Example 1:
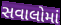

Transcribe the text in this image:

સવાલોમાં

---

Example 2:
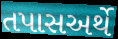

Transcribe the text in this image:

તપાસઅર્થે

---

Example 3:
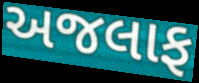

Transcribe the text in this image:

અજલાફ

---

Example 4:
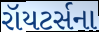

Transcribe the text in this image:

રૉયટર્સના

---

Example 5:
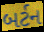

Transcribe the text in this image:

બર્ટન